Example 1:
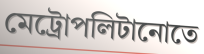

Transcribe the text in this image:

মেট্রোপলিটানোতে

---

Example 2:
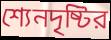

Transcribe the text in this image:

শ্যেনদৃষ্টির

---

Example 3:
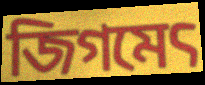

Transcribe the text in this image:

জিগমেৎ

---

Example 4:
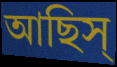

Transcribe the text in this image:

আছিস্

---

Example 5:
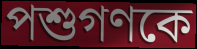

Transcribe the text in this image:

পশুগণকে